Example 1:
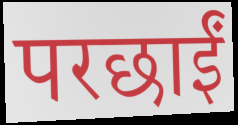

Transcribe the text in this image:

परछाईं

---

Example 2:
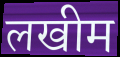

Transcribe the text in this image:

लखीम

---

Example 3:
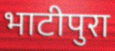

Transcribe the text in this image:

भाटीपुरा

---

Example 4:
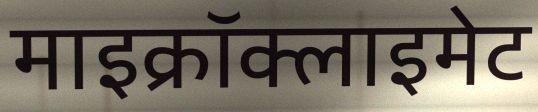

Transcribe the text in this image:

माइक्रॉक्लाइमेट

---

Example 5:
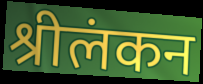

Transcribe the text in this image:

श्रीलंकन